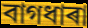
বাগধাৰা